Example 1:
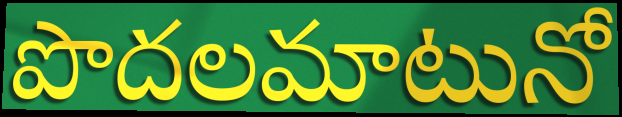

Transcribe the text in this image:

పొదలమాటునో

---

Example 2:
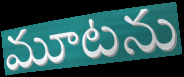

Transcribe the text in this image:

మూటను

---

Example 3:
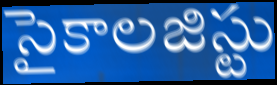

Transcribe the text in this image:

సైకాలజిస్టు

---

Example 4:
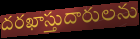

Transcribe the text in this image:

దరఖాస్తుదారులను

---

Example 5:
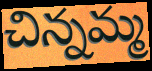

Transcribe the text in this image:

చిన్నమ్మ